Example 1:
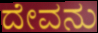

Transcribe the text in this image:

ದೇವನು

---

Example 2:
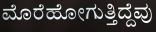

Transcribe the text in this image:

ಮೊರೆಹೋಗುತ್ತಿದ್ದೆವು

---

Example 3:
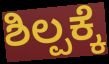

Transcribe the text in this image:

ಶಿಲ್ಪಕ್ಕೆ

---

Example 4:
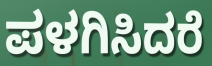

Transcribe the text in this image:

ಪಳಗಿಸಿದರೆ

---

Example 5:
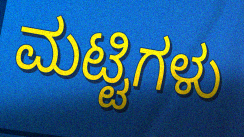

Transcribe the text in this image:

ಮಟ್ಟಿಗಳು